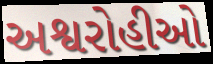
અશ્વરોહીઓ